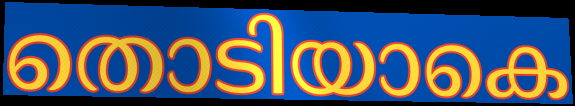
തൊടിയാകെ